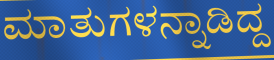
ಮಾತುಗಳನ್ನಾಡಿದ್ದ